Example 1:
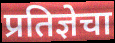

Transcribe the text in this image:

प्रतिज्ञेचा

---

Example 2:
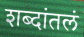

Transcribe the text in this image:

शब्दांतलं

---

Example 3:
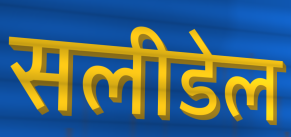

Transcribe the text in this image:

सलीडेल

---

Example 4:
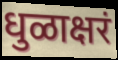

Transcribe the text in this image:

धुळाक्षरं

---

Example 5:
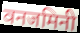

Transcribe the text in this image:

वनजमिनी